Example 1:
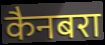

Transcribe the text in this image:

कैनबरा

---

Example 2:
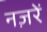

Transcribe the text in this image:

नज़रें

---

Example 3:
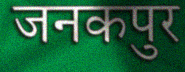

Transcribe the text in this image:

जनकपुर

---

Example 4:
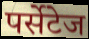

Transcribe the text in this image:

पर्सेटेज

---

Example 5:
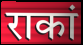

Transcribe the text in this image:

राकां